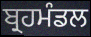
ਬ੍ਰਹਮੰਡਲ